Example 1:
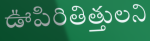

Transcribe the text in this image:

ఊపిరితిత్తులని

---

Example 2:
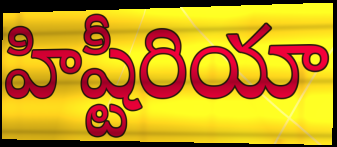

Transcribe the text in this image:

హిష్టీరియా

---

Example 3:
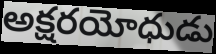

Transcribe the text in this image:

అక్షరయోధుడు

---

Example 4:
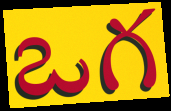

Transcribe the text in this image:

ఒగ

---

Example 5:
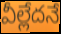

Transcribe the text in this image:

వీల్లేదనే